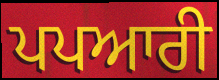
ਪਪਆਰੀ